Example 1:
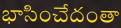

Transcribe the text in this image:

భాసించేదంతా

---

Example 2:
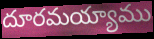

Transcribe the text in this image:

దూరమయ్యాము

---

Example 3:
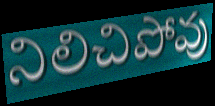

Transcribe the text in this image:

నిలిచిపోవు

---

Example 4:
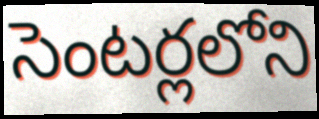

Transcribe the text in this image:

సెంటర్లలోని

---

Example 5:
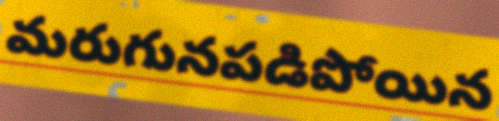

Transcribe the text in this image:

మరుగునపడిపోయిన